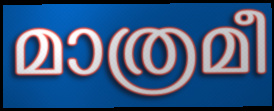
മാത്രമീ